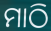
ମାଠି